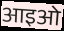
आइओ